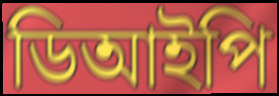
ডিআইপি